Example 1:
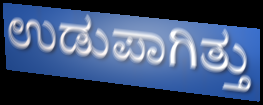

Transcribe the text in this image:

ಉಡುಪಾಗಿತ್ತು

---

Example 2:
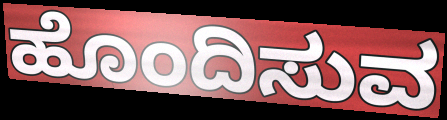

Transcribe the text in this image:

ಹೊಂದಿಸುವ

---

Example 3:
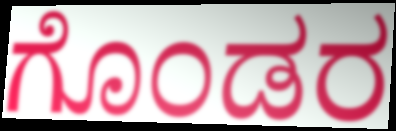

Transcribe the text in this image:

ಗೊಂಡರ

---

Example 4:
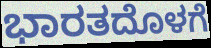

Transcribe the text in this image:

ಭಾರತದೊಳಗೆ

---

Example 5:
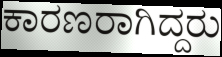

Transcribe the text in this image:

ಕಾರಣರಾಗಿದ್ದರು